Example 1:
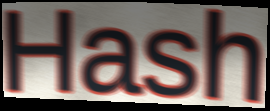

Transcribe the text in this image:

Hash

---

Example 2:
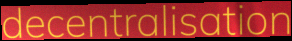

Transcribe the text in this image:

decentralisation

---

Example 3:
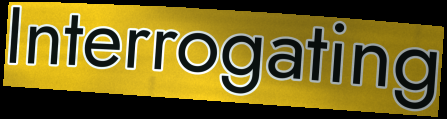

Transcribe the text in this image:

Interrogating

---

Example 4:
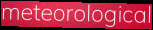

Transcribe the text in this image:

meteorological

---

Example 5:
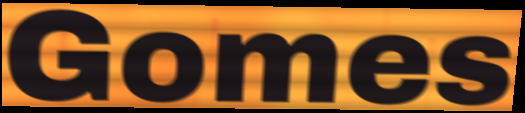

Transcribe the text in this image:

Gomes